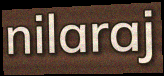
nilaraj